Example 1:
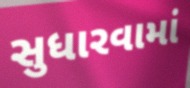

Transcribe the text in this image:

સુધારવામાં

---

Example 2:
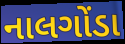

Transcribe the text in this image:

નાલગોંડા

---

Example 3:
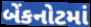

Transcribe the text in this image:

બેંકનોટમાં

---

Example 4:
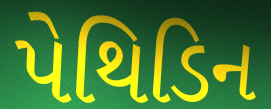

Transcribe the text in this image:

પેથિડિન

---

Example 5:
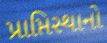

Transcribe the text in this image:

પ્રાપ્તિસ્થાનો